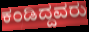
ಕಂಡಿದ್ದವರು